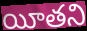
యీతని